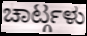
ಚಾರ್ಟ್ಗಳು